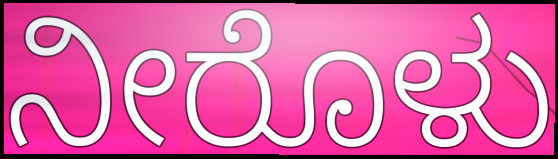
ನೀರೊಳು